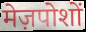
मेज़पोशों